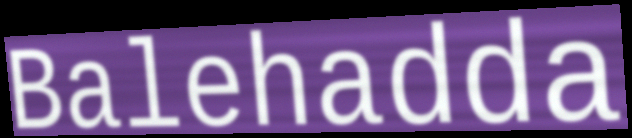
Balehadda